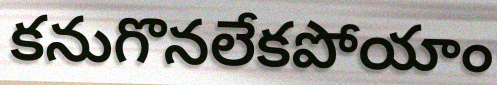
కనుగొనలేకపోయాం